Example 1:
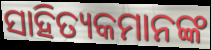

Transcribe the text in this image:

ସାହିତ୍ୟକମାନଙ୍କ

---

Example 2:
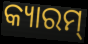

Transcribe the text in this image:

କ୍ୟାରମ୍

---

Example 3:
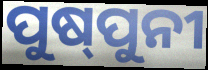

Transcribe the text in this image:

ପୁଷ୍‌ପୁନୀ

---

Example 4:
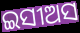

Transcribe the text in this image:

ଇସୀଅସ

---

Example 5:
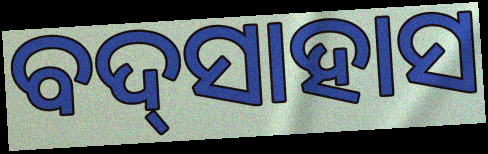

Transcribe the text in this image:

ବଦ୍‌ସାହାସ